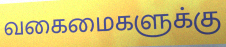
வகைமைகளுக்கு